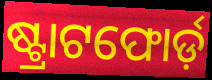
ଷ୍ଟ୍ରାଟଫୋର୍ଡ଼